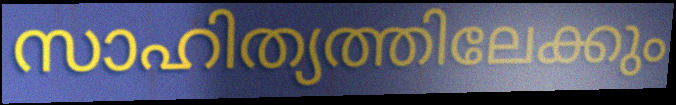
സാഹിത്യത്തിലേക്കും